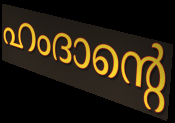
ഹംദാന്റെ